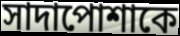
সাদাপোশাকে